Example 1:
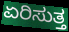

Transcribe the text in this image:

ಏರಿಸುತ್ತ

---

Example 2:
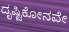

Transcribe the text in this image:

ದೃಷ್ಟಿಕೋನವೇ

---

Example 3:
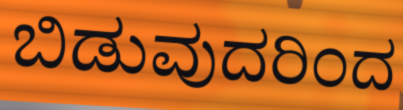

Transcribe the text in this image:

ಬಿಡುವುದರಿಂದ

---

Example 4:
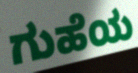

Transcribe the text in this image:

ಗುಹೆಯ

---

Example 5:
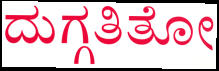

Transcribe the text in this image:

ದುಗ್ಗತಿತೋ